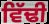
ਵਿੱਢੀ